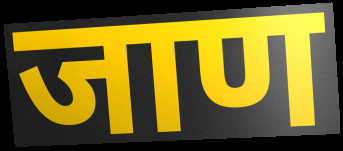
जाण